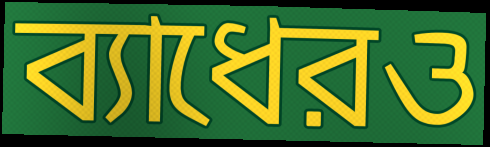
ব্যাধেরও